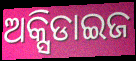
ଅକ୍ସିଡାଇଜ